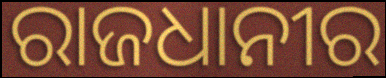
ରାଜଧାନୀର